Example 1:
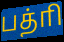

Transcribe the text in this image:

பத்ரி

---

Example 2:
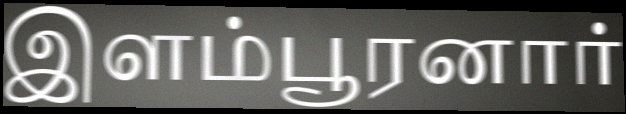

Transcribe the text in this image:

இளம்பூரனார்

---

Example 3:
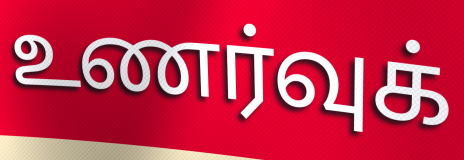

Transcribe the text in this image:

உணர்வுக்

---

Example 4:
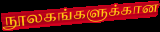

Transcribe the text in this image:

நூலகங்களுக்கான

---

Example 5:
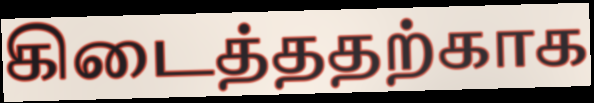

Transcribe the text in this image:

கிடைத்ததற்காக